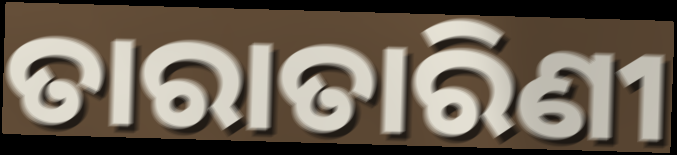
ତାରାତାରିଣୀ